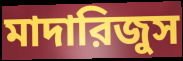
মাদারিজুস